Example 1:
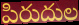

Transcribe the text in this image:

పిరుదుల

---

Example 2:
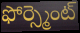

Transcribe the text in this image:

ఫోర్స్మెంట్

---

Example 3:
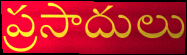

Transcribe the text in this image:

ప్రసాదులు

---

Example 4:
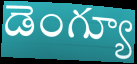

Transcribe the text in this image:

డెంగ్యూ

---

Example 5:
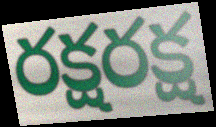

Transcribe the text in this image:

రక్షరక్ష